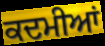
ਕਦਮੀਆਂ